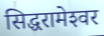
सिद्धरामेश्‍वर